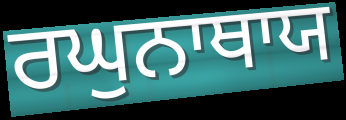
ਰਘੁਨਾਥਾਯ